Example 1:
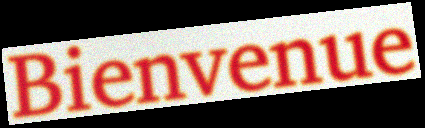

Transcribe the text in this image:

Bienvenue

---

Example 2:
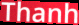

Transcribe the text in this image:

Thanh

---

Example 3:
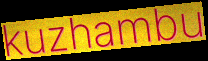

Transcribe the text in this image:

kuzhambu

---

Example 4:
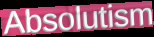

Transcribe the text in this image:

Absolutism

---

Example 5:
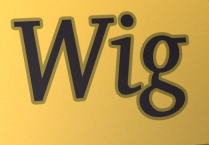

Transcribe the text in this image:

Wig